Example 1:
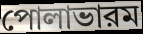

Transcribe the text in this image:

পোলাভারম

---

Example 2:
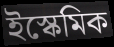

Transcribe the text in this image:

ইস্কেমিক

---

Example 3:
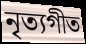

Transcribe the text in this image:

নৃত্যগীত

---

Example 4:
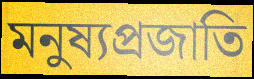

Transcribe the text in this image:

মনুষ্যপ্রজাতি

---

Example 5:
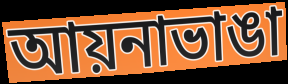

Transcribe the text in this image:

আয়নাভাঙা